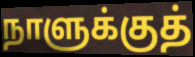
நாளுக்குத்